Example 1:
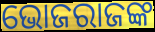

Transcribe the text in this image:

ଭୋଜରାଜଙ୍କ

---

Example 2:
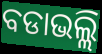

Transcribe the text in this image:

ବଡାଭଲ୍ଲି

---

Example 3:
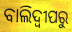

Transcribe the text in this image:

ବାଲିଦ୍ୱୀପରୁ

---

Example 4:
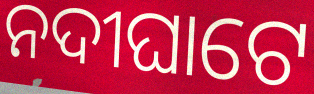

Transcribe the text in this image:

ନଦୀଘାଟେ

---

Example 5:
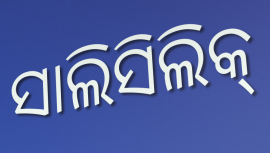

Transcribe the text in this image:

ସାଲିସିଲିକ୍